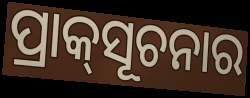
ପ୍ରାକ୍‌ସୂଚନାର